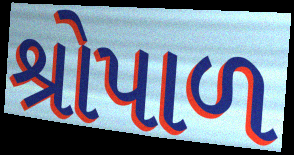
શ્રોપાળ